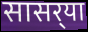
सासर्‍या